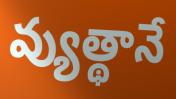
వ్యుత్థానే